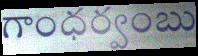
గాంధర్వంబు